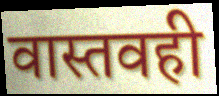
वास्तवही